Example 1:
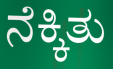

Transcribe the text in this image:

ನೆಕ್ಕಿತು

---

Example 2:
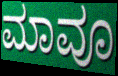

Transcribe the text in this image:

ಮಾವೂ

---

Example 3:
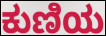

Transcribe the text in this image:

ಕುಣಿಯ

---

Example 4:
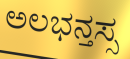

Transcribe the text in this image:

ಅಲಭನ್ತಸ್ಸ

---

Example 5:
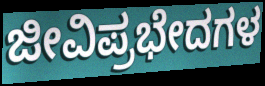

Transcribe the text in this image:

ಜೀವಿಪ್ರಭೇದಗಳ